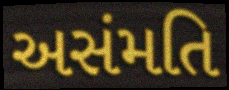
અસંમતિ